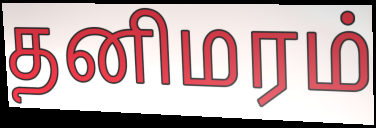
தனிமரம்